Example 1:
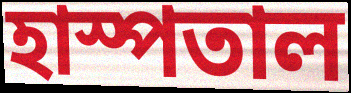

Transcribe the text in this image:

হাস্পতাল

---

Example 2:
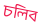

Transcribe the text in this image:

চলিব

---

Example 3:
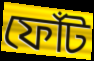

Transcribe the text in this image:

ফোঁট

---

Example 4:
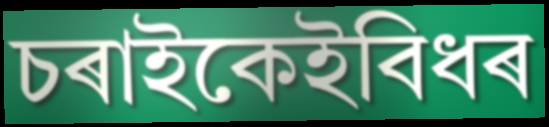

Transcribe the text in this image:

চৰাইকেইবিধৰ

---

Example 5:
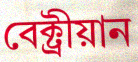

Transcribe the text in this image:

বেক্ট্ৰীয়ান